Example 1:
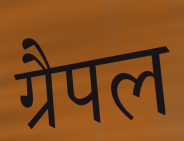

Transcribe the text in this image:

ग्रैपल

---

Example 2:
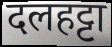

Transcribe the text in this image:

दलहट्टा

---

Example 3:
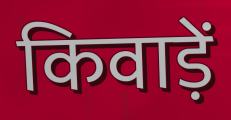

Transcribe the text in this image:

किवाड़ें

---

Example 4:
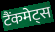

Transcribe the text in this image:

टैंकमेट्स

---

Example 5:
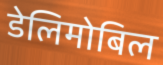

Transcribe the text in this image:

डेलिमोबिल